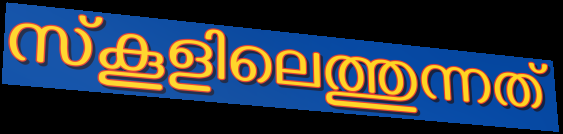
സ്‌കൂളിലെത്തുന്നത്